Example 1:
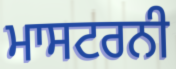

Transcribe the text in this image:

ਮਾਸਟਰਨੀ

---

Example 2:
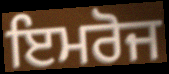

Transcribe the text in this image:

ਇਮਰੋਜ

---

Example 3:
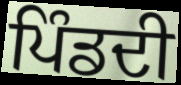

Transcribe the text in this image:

ਪਿੰਡਦੀ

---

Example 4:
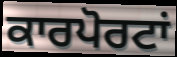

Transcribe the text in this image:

ਕਾਰਪੋਰਟਾਂ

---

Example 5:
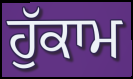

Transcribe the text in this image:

ਹੁੱਕਾਮ